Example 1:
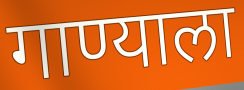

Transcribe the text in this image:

गाण्याला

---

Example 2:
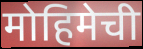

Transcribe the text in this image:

मोहिमेची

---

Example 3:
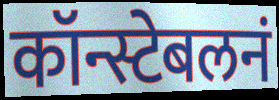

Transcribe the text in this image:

कॉन्स्टेबलनं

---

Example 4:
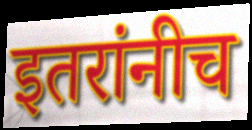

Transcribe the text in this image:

इतरांनीच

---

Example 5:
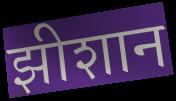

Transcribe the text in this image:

झीशान